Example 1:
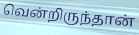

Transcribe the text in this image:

வென்றிருந்தான்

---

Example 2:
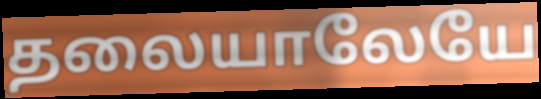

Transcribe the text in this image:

தலையாலேயே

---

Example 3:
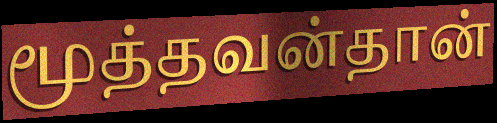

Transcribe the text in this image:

மூத்தவன்தான்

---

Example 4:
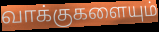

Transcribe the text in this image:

வாக்குகளையும்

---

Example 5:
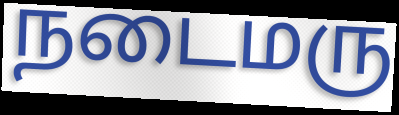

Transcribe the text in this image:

நடைமரு